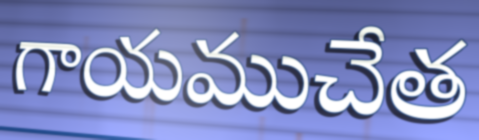
గాయముచేత